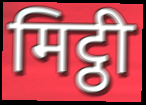
मिट्ठी